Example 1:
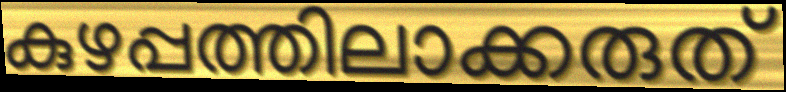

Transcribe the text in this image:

കുഴപ്പത്തിലാക്കരുത്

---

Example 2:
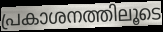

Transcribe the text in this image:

പ്രകാശനത്തിലൂടെ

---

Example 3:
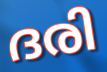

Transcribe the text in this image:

ദരി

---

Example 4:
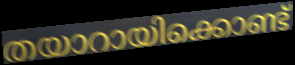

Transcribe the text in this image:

തയാറായിക്കൊണ്ട്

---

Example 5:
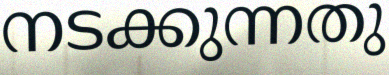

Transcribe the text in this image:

നടക്കുന്നതു